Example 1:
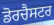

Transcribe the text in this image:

ਡੋਰਚੈਸਟਰ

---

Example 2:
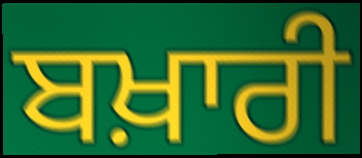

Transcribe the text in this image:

ਬਖ਼ਾਰੀ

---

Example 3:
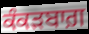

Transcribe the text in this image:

ਕੰਕੜਬਾਗ਼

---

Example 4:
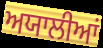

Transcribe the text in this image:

ਅਯਾਲੀਆਂ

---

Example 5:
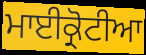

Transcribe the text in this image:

ਮਾਈਕ੍ਰੋਟੀਆ